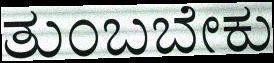
ತುಂಬಬೇಕು